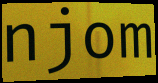
njom